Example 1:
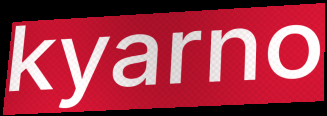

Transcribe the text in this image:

kyarno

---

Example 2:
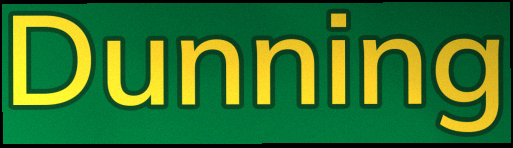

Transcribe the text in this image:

Dunning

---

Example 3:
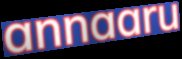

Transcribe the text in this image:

annaaru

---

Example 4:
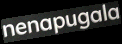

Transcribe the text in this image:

nenapugala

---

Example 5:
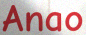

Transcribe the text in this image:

Anao